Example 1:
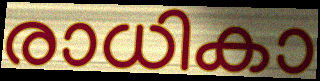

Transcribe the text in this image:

രാധികാ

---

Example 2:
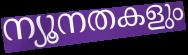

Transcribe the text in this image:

ന്യൂനതകളും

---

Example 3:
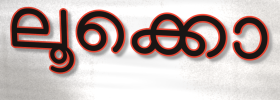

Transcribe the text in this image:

ലൂക്കൊ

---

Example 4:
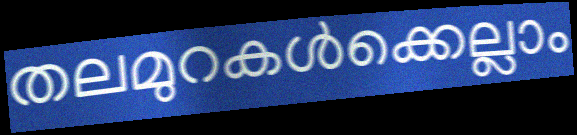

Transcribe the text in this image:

തലമുറകൾക്കെല്ലാം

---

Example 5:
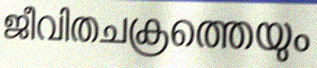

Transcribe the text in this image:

ജീവിതചക്രത്തെയും